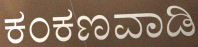
ಕಂಕಣವಾಡಿ